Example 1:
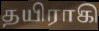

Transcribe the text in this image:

தயிராகி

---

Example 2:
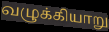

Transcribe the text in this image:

வழுக்கியாறு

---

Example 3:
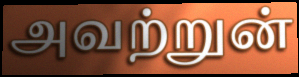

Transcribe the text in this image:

அவற்றுன்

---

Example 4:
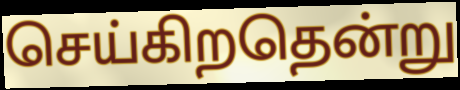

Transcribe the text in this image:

செய்கிறதென்று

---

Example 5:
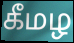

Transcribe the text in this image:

கீமழ